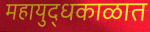
महायुद्धकाळात